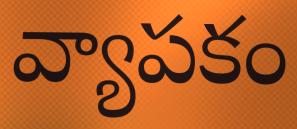
వ్యాపకం